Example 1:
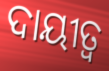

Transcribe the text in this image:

ଦାୟୀତ୍ୱ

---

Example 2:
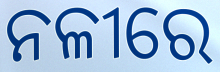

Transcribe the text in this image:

ନଳୀରେ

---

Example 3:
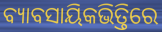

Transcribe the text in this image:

ବ୍ୟାବସାୟିକଭିତ୍ତିରେ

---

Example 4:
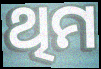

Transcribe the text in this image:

ଥିମ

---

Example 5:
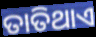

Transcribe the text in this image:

ତାତିଥାଏ